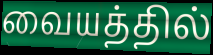
வையத்தில்